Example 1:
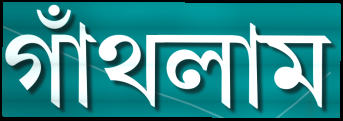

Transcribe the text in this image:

গাঁথলাম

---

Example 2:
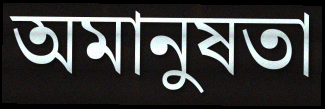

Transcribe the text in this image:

অমানুষতা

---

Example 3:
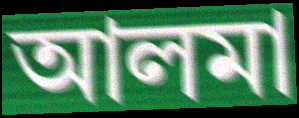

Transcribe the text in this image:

আলমা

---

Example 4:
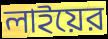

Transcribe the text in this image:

লাইয়ের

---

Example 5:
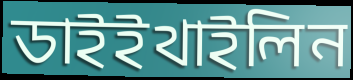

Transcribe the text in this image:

ডাইইথাইলিন